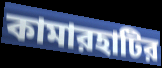
কামারহাটির